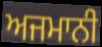
ਅਜਮਾਨੀ